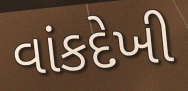
વાંકદેખી